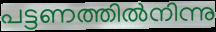
പട്ടണത്തിൽനിന്നു